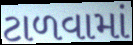
ટાળવામાં